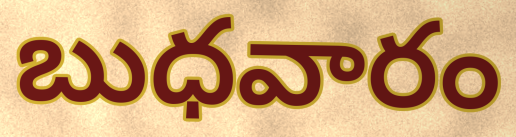
బుధవారం